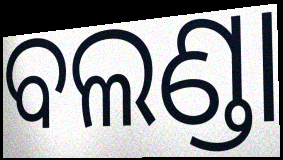
ବଲଣ୍ଡା